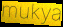
mukya